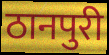
ठानपुरी